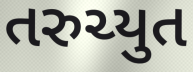
તરુચ્યુત